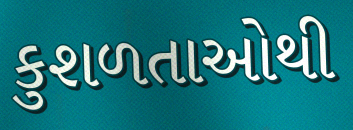
કુશળતાઓથી